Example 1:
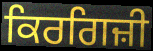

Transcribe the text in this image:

ਕਿਰਗਿਜ਼ੀ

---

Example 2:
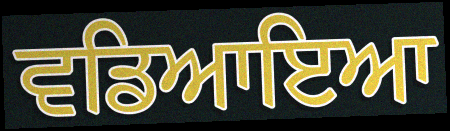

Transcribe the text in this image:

ਵਡਿਆਇਆ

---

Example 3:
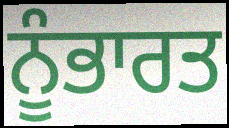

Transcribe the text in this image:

ਨੂੰਭਾਰਤ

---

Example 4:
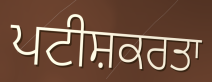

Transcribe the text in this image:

ਪਟੀਸ਼ਕਰਤਾ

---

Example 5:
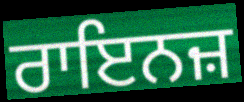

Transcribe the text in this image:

ਰਾਇਨਜ਼